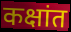
कक्षांत